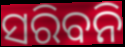
ସରିବନି